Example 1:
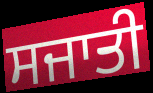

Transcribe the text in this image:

ਸਜਾਤੀ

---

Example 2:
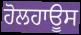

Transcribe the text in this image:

ਹੋਲਹਾਊਸ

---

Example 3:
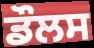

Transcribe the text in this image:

ਡੌਲਸ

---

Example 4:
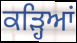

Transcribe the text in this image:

ਕੜ੍ਹਿਆਂ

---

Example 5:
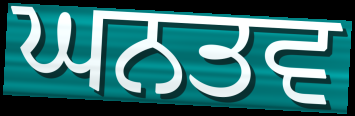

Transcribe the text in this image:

ਘਨਤਵ